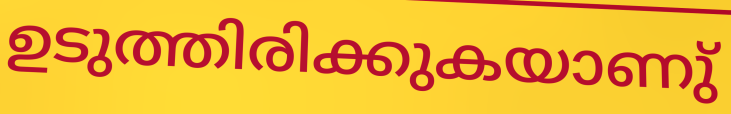
ഉടുത്തിരിക്കുകയാണു്